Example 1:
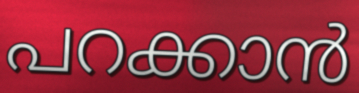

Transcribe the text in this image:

പറക്കാൻ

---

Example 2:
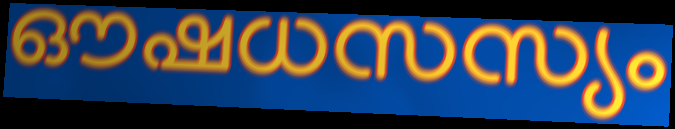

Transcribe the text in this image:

ഔഷധസസ്യം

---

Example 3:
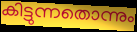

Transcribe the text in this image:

കിട്ടുന്നതൊന്നും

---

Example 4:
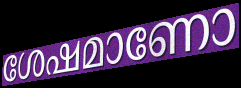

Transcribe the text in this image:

ശേഷമാണോ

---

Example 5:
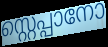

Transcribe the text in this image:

സ്റ്റെപ്പാനോ